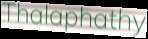
Thalaphathy